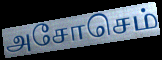
அசோசெம்